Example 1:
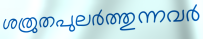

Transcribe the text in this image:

ശത്രുതപുലർത്തുന്നവർ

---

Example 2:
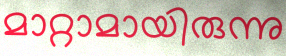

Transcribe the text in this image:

മാറ്റാമായിരുന്നു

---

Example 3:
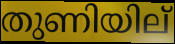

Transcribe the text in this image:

തുണിയില്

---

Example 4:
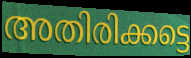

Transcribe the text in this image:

അതിരിക്കട്ടെ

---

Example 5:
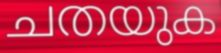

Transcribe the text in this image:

ചതയുക